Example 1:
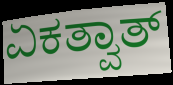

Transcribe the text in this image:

ಏಕತ್ವಾತ್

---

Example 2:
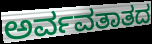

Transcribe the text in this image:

ಅರ್ವವತಾತದ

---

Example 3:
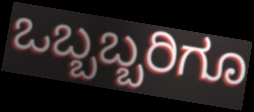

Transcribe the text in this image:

ಒಬ್ಬಬ್ಬರಿಗೂ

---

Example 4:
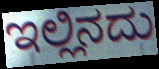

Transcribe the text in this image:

ಇಲ್ಲಿನದು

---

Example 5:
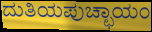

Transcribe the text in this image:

ದುತಿಯಪುಚ್ಛಾಯಂ